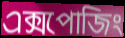
এক্সপোজিং